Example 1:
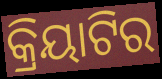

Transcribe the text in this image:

କ୍ରିୟାଟିର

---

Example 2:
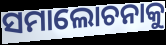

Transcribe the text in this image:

ସମାଲୋଚନାକୁ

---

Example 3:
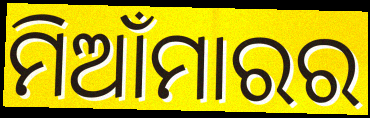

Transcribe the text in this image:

ମିଆଁମାରର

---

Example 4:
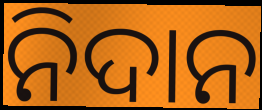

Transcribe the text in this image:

ନିଦାନ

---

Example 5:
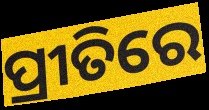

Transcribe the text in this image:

ପ୍ରୀତିରେ